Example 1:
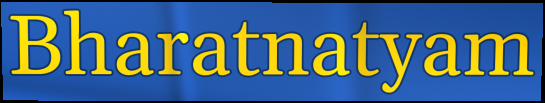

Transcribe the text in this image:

Bharatnatyam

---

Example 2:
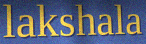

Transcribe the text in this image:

lakshala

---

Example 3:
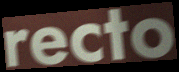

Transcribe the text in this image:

recto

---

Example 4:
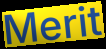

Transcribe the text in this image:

Merit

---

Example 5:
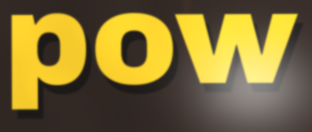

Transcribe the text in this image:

pow